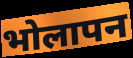
भोलापन